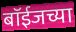
बॉईजच्या